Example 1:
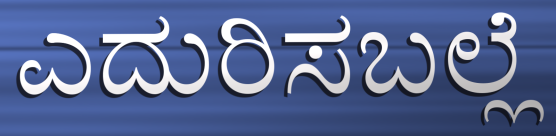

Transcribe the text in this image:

ಎದುರಿಸಬಲ್ಲೆ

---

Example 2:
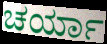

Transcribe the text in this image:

ಚರ್ಯಾ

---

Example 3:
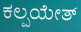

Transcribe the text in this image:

ಕಲ್ಪಯೇತ್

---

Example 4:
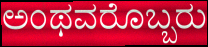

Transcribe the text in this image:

ಅಂಥವರೊಬ್ಬರು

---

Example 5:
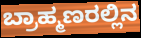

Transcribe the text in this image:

ಬ್ರಾಹ್ಮಣರಲ್ಲಿನ